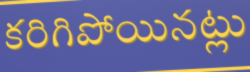
కరిగిపోయినట్లు